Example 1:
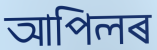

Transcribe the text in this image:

আপিলৰ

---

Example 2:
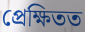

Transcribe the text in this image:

প্ৰেক্ষিতত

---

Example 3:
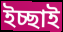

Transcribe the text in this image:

ইচ্ছাই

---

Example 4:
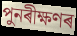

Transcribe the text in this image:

পুনৰীক্ষণৰ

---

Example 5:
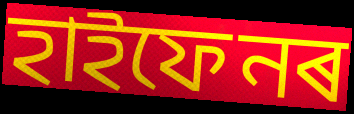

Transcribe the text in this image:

হাইফেনৰ